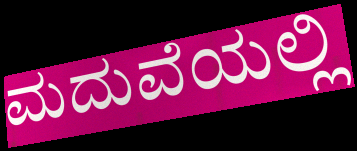
ಮದುವೆಯಲ್ಲಿ